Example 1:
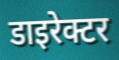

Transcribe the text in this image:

डाइरेक्टर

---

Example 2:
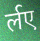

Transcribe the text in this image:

र्लए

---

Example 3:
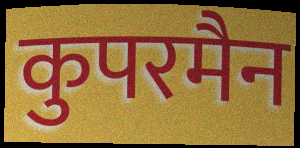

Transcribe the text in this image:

कुपरमैन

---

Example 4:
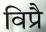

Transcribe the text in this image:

विप्रै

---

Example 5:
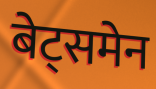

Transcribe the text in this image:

बेट्समेन